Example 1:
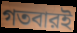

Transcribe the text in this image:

গতবারই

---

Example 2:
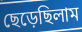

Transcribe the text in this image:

ছেড়েছিলাম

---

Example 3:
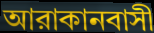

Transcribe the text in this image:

আরাকানবাসী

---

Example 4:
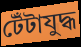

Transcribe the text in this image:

টেঁটাযুদ্ধ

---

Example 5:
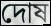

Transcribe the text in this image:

দোষ